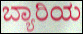
ಬ್ಯಾರಿಯ